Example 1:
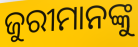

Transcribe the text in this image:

ଜୁରୀମାନଙ୍କୁ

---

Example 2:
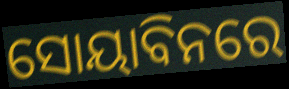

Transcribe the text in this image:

ସୋୟାବିନରେ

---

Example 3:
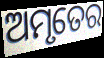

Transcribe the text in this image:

ଅମୃତେର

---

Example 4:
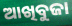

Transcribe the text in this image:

ଆଖିବୁଜା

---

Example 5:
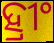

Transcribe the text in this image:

ହ୍ରୀଂ